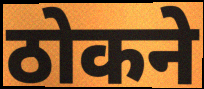
ठोकने